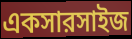
একসারসাইজ